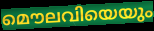
മൌലവിയെയും